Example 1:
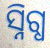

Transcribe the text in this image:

ସ୍ନିଗ୍ଧ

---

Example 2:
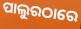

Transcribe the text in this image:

ପାଲୁରଠାରେ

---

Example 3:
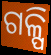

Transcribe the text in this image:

ଗଳ୍ପି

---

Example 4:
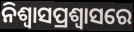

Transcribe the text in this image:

ନିଶ୍ୱାସପ୍ରଶ୍ୱାସରେ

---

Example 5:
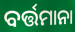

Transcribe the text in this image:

ବର୍ତ୍ତମାନା